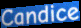
Candice